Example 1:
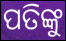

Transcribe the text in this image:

ପତିଙ୍କୁ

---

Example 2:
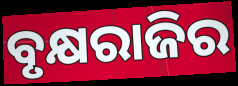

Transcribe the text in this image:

ବୃକ୍ଷରାଜିର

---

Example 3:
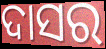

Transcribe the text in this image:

ଦାସର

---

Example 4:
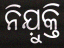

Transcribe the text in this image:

ନିଯ଼ୁକ୍ତି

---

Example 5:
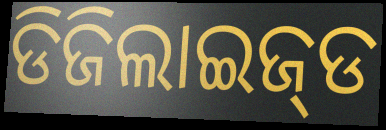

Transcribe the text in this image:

ଡିଜିଲାଇଜ୍‌ଡ